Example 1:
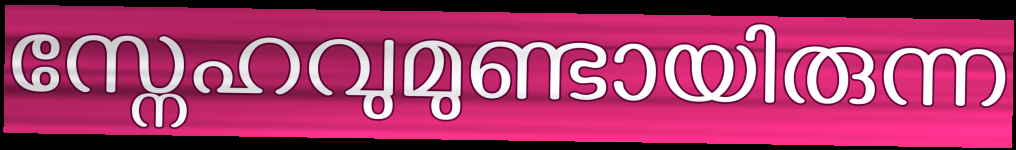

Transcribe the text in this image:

സ്നേഹവുമുണ്ടായിരുന്ന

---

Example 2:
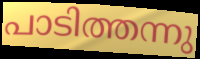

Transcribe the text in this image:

പാടിത്തന്നു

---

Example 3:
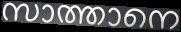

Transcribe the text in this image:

സാത്താനെ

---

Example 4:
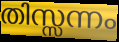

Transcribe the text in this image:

തിസ്സന്നം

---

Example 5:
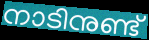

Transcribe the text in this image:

നാടിനുണ്ട്